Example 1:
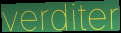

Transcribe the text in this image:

verditer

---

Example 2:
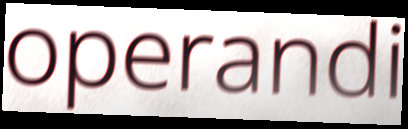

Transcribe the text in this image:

operandi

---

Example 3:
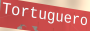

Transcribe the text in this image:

Tortuguero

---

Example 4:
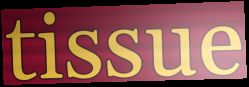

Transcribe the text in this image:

tissue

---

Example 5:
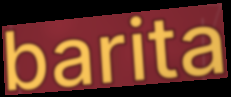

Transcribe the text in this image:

barita